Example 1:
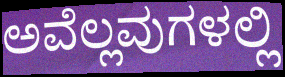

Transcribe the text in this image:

ಅವೆಲ್ಲವುಗಳಲ್ಲಿ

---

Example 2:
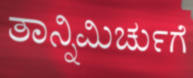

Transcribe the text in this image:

ತಾನ್ನಿಮಿರ್ಚುಗೆ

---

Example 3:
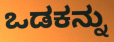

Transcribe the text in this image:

ಒಡಕನ್ನು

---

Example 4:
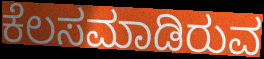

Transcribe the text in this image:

ಕೆಲಸಮಾಡಿರುವ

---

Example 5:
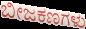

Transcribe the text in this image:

ಬೀಜಕಣಗಳು